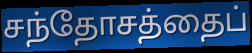
சந்தோசத்தைப்